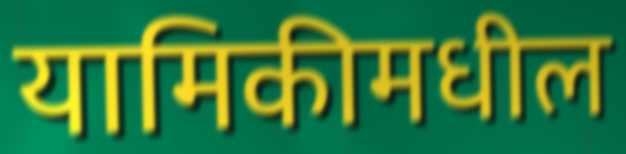
यामिकीमधील